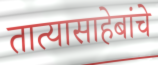
तात्यासाहेबांचे